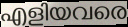
എളിയവരെ